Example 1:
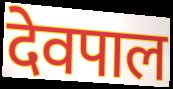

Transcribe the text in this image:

देवपाल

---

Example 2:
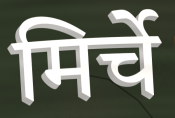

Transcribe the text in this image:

मिर्चे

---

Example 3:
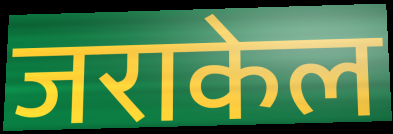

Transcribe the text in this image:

जराकेल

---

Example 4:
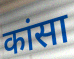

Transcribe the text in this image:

कांसा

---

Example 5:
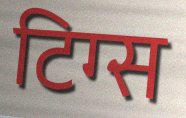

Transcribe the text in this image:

टिग्स